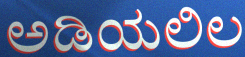
ಅಡಿಯಲಿಲ